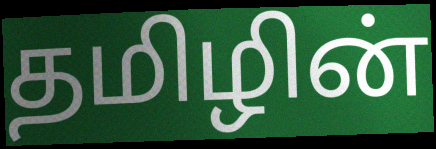
தமிழின்